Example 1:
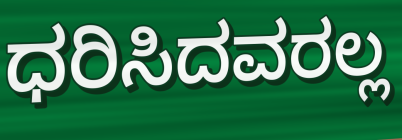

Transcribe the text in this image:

ಧರಿಸಿದವರಲ್ಲ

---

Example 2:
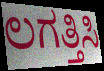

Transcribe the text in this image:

ಲಗತ್ತಿಸಿ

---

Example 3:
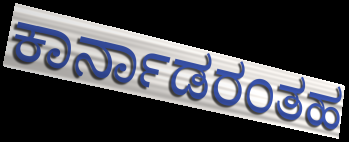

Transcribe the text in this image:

ಕಾರ್ನಾಡರಂತಹ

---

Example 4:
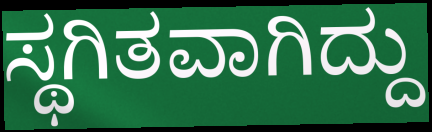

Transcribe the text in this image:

ಸ್ಥಗಿತವಾಗಿದ್ದು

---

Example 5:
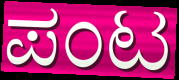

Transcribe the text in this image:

ಪಂಟ